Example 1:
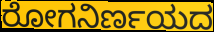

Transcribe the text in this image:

ರೋಗನಿರ್ಣಯದ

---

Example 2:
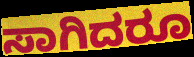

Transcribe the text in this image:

ಸಾಗಿದರೂ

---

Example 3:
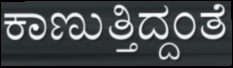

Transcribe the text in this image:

ಕಾಣುತ್ತಿದ್ದಂತೆ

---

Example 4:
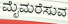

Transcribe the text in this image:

ಮೈಮರೆಸುವ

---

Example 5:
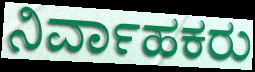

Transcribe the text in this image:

ನಿರ್ವಾಹಕರು